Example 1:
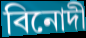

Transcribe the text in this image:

বিনোদী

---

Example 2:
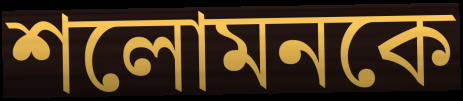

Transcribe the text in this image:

শলোমনকে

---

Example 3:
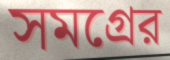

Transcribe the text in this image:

সমগ্রের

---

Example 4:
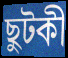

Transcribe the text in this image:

ছুটকী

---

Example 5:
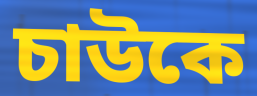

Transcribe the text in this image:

চাউকে